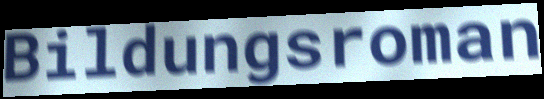
Bildungsroman